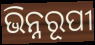
ଭିନ୍ନରୂପୀ